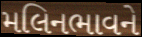
મલિનભાવને